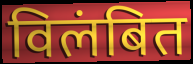
विलंबित